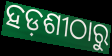
ହଡ଼ଶୀଠାରୁ